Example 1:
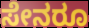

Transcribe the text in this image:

ಸೇನರೂ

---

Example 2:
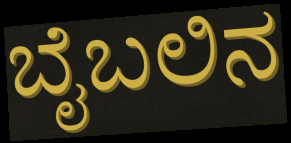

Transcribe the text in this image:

ಬೈಬಲಿನ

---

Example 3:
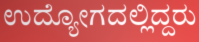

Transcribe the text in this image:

ಉದ್ಯೋಗದಲ್ಲಿದ್ದರು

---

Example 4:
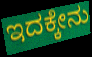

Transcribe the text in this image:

ಇದಕ್ಕೇನು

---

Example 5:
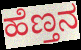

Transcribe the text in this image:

ಹೆಣ್ತನ